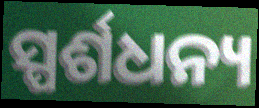
ସ୍ପର୍ଶଧନ୍ୟ